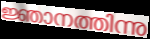
ജ്ഞാനത്തിന്നു